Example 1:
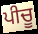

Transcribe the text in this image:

ਪੀਚੂ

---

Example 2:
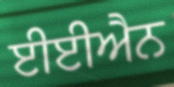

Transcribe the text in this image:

ਈਈਐਨ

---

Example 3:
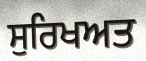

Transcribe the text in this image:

ਸੁਰਿਖਅਤ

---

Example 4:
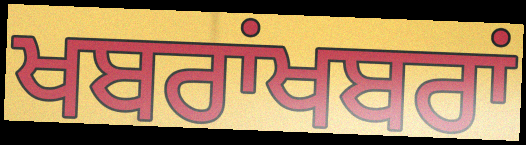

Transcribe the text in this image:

ਖਬਰਾਂਖਬਰਾਂ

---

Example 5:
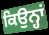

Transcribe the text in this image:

ਕਿਉਨ੍ਹਾਂ